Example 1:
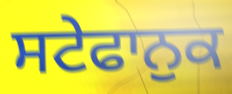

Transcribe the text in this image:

ਸਟੇਫਾਨੁਕ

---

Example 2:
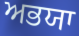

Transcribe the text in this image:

ਅਭਯਾ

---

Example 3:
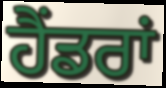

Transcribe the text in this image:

ਹੈਂਡਰਾਂ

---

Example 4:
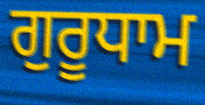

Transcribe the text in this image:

ਗੁਰੂਧਾਮ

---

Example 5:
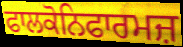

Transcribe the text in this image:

ਫਾਲਕੋਨਿਫਾਰਮਜ਼